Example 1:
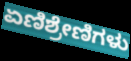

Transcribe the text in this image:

ಏಣಿಶ್ರೇಣಿಗಳು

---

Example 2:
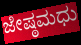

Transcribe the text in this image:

ಜೇಷ್ಠಮಧು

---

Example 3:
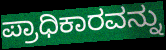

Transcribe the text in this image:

ಪ್ರಾಧಿಕಾರವನ್ನು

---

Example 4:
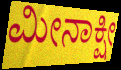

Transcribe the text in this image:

ಮೀನಾಕ್ಷೀ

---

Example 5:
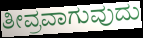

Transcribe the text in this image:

ತೀವ್ರವಾಗುವುದು